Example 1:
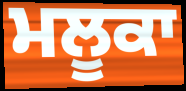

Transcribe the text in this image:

ਮਲੂਕਾ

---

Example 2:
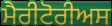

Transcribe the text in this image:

ਮੈਰੀਟੋਰੀਅਸ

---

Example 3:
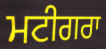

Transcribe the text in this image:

ਮਟੀਗਰਾ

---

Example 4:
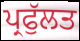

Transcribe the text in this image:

ਪ੍ਰਫੁੱਲਤ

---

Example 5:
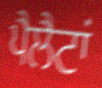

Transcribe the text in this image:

ਪੈਲੈਟਾਂ